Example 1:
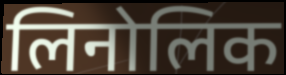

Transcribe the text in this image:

लिनोलिक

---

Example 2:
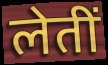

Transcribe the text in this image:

लेतीं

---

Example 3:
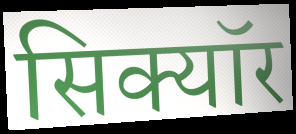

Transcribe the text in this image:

सिक्यॉर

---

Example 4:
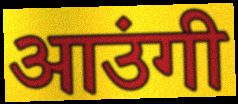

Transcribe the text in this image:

आउंगी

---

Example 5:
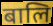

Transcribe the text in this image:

बालि